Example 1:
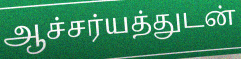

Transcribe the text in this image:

ஆச்சர்யத்துடன்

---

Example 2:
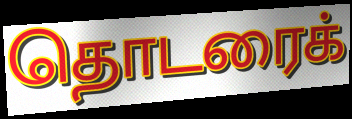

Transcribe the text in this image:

தொடரைக்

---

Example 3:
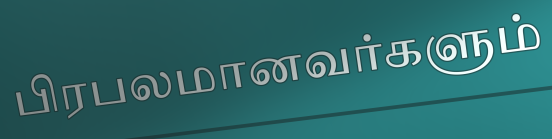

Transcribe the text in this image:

பிரபலமானவர்களும்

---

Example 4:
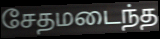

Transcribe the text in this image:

சேதமடைந்த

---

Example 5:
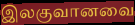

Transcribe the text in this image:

இலகுவானவை